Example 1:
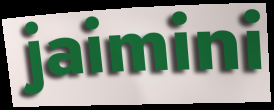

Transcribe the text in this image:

jaimini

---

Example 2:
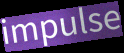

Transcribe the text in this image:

impulse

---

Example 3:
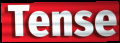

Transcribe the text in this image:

Tense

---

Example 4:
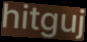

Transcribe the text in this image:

hitguj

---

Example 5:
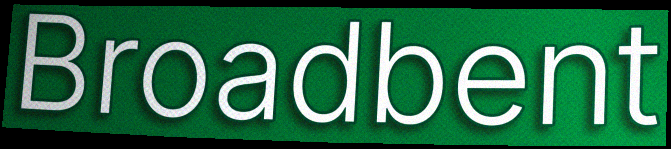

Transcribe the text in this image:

Broadbent